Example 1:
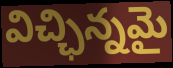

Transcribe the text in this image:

విచ్ఛిన్నమై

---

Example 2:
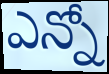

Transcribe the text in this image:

ఎన్నో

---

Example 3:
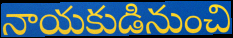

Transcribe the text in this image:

నాయకుడినుంచి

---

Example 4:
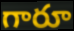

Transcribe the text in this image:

గారూ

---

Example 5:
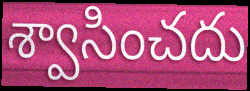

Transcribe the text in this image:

శ్వాసించదు